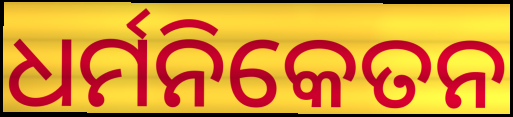
ଧର୍ମନିକେତନ